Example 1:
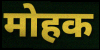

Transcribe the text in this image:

मोहक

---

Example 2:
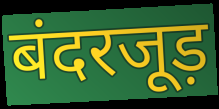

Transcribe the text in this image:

बंदरजूड़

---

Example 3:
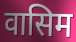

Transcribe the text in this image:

वासिम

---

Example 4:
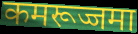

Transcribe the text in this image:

कमरूज्जमा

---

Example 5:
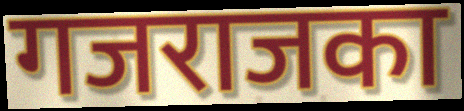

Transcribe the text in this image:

गजराजका